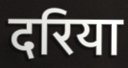
दरिया